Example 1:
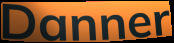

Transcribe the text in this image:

Danner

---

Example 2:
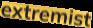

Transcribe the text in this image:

extremist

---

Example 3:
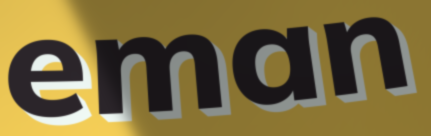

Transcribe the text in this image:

eman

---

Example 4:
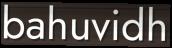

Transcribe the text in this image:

bahuvidh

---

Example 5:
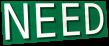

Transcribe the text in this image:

NEED